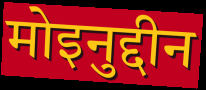
मोइनुद्दीन